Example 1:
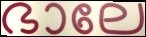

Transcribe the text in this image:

ഭാലേ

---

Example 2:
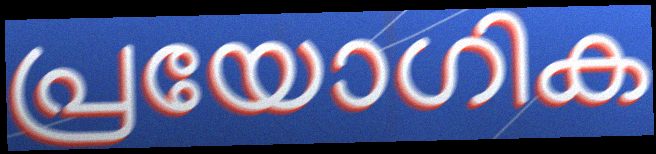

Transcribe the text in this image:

പ്രയോഗിക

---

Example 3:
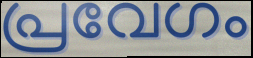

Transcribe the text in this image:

പ്രവേഗം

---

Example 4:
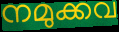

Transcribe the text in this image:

നമുക്കവ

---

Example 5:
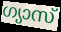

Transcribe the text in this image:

ഗ്യാസ്